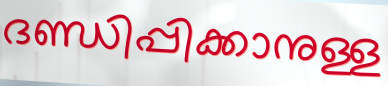
ദണ്ഡിപ്പിക്കാനുള്ള